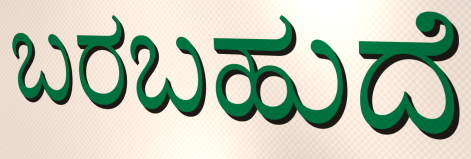
ಬರಬಹುದೆ